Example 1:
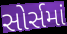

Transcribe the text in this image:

સોર્સમાં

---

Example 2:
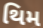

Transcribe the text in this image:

થિમ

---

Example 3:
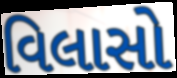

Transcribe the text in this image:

વિલાસો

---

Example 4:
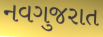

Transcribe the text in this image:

નવગુજરાત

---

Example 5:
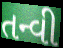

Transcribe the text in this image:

તન્વી